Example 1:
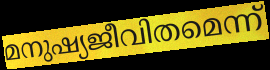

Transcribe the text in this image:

മനുഷ്യജീവിതമെന്ന്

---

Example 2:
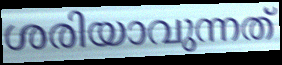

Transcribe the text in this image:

ശരിയാവുന്നത്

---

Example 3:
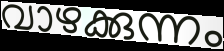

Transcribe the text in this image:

വാഴക്കുന്നം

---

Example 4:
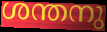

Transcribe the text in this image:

ശന്തനു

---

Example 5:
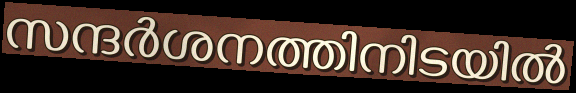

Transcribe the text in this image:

സന്ദർശനത്തിനിടയിൽ